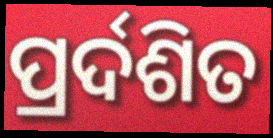
ପ୍ରର୍ଦଶିତ